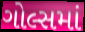
ગોલ્સમાં